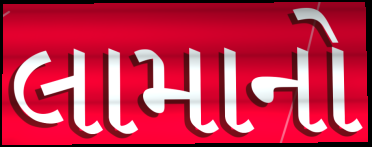
લામાનો